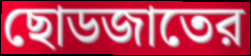
ছোডজাতের